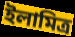
ইলামিত্র